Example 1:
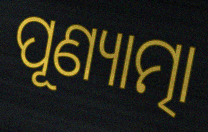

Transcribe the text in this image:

ପୂଣ୍ୟାତ୍ମା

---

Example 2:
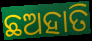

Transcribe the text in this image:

ଛଅହାତି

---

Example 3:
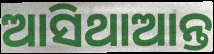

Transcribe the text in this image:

ଆସିଥାଆନ୍ତ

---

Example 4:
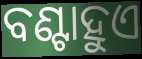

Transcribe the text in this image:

ବଣ୍ଟାହୁଏ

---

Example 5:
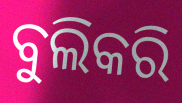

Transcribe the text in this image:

ବୁଲିକରି